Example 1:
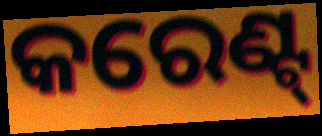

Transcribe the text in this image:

କରେଣ୍ଟ୍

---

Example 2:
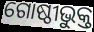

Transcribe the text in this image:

ଗୋଷ୍ଠୀଭୁକ୍ତ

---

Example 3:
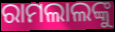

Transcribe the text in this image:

ରାମଲାଲଙ୍କୁ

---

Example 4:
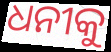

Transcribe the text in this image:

ଧନୀକୁ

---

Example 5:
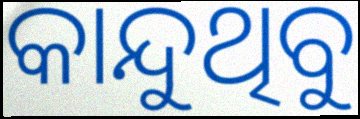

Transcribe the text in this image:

କାନ୍ଦୁଥିବୁ